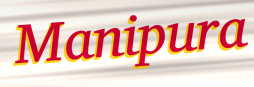
Manipura